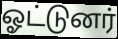
ஓட்டுனர்